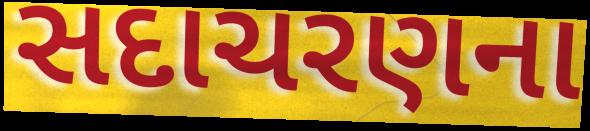
સદાચરણના